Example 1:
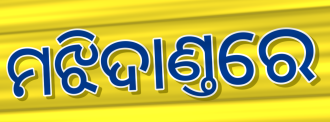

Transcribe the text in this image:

ମଝିଦାଣ୍ତରେ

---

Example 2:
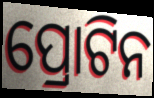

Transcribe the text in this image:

ପ୍ରୋଟିନ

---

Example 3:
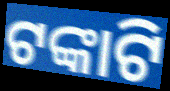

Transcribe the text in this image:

ଟଙ୍କାଟି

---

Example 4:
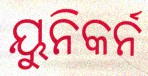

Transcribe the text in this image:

ୟୁନିକର୍ନ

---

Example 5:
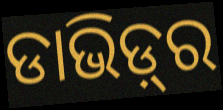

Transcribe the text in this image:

ଡାଭିଡ଼୍‍ର